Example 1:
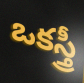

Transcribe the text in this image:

ఒకస్త్రీ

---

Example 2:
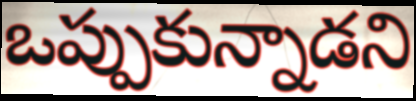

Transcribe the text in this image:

ఒప్పుకున్నాడని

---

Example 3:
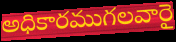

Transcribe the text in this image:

అధికారముగలవారై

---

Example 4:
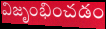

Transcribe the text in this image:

విజృంభించడం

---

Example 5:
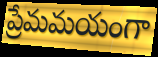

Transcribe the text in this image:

ప్రేమమయంగా